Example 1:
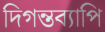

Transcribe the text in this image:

দিগন্তব্যাপি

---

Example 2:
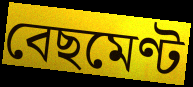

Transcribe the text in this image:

বেছমেণ্ট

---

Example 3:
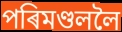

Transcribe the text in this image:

পৰিমণ্ডললৈ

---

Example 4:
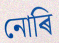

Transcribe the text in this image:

নোৰি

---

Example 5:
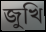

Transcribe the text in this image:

জুখি